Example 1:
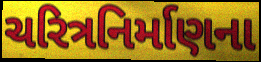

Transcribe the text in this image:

ચરિત્રનિર્માણના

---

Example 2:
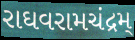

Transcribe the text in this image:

રાઘવરામચંદ્રમ્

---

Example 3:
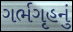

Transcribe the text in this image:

ગર્ભગૃહનું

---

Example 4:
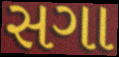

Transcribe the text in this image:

સગા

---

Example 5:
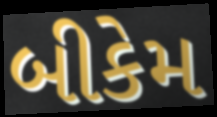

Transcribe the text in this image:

બીકેમ